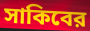
সাকিবের